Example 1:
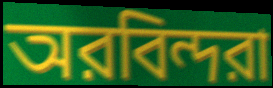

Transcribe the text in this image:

অরবিন্দরা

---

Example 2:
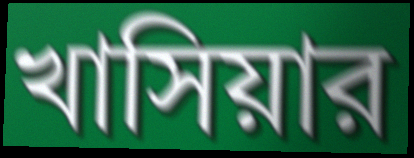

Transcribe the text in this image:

খাসিয়ার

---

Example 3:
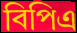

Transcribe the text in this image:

বিপিএ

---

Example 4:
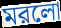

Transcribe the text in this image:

মরলো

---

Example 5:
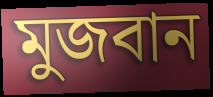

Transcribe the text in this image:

মুজবান